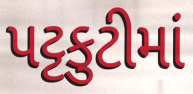
પટ્ટકુટીમાં